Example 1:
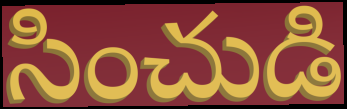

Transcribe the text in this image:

సించుడి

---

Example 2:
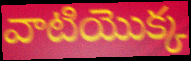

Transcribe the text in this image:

వాటియొక్క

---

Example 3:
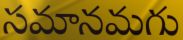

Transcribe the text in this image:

సమానమగు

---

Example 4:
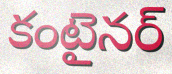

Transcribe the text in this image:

కంటైనర్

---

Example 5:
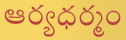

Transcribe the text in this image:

ఆర్యధర్మం